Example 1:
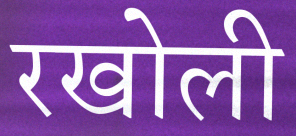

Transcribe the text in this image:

रखोली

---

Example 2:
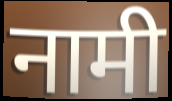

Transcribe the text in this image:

नामी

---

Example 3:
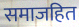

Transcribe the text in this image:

समाजहित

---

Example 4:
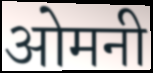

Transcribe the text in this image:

ओमनी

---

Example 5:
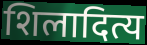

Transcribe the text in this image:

शिलादित्य